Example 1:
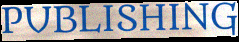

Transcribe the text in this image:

PUBLISHING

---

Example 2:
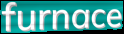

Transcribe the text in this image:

furnace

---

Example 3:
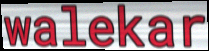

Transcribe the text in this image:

walekar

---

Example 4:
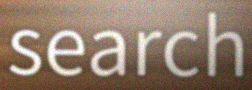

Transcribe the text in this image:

search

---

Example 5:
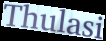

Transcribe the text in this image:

Thulasi